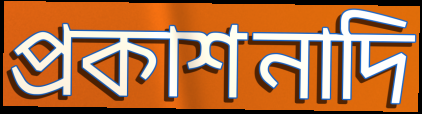
প্রকাশনাদি